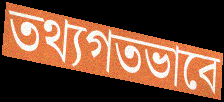
তথ্যগতভাবে